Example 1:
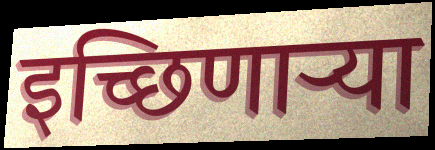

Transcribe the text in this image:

इच्छिणार्‍या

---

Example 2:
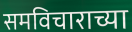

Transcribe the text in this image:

समविचाराच्या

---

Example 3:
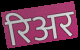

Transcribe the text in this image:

रिअर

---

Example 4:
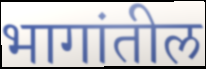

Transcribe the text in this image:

भागांतील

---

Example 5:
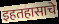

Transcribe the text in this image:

इहतहासाचे